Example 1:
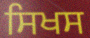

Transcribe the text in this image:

ਸਿਖਸ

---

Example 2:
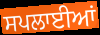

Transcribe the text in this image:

ਸਪਲਾਈਆਂ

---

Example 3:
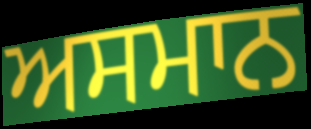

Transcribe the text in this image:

ਅਸਮਾਨ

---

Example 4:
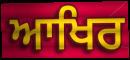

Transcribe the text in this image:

ਆਖਿਰ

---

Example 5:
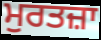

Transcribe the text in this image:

ਮੁਰਤਜ਼ਾ